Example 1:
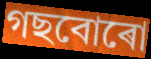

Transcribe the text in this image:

গছবোৰো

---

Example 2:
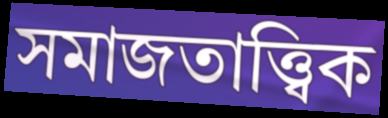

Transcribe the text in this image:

সমাজতাত্ত্বিক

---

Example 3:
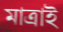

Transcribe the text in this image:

মাত্ৰাই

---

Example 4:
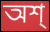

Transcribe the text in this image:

অশ্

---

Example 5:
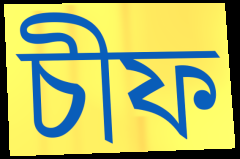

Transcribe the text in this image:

চীফ